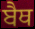
ਬੈਥ